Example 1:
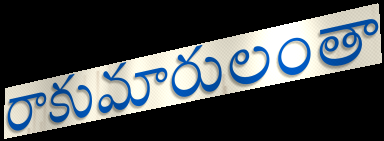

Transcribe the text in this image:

రాకుమారులంతా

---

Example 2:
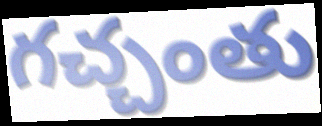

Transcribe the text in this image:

గచ్చంతు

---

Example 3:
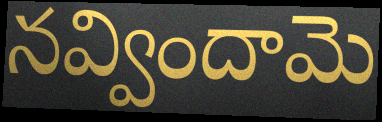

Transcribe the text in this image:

నవ్విందామె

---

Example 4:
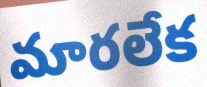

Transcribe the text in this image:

మారలేక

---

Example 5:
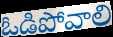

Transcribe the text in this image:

ఓడిపోవాలి